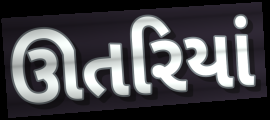
ઊતરિયાં